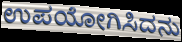
ಉಪಯೋಗಿಸಿದನು